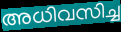
അധിവസിച്ച